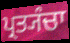
ਪ੍ਰਤ੍ਯੰਚਾ